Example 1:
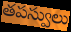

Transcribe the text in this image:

తపస్వులు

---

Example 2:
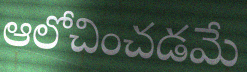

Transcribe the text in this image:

ఆలోచించడమే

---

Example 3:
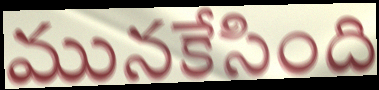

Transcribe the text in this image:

మునకేసింది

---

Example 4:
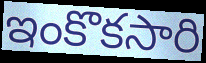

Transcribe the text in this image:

ఇంకొకసారి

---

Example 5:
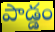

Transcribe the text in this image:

పాడ్డం